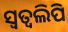
ସ୍ଵତ୍ଵଲିପି